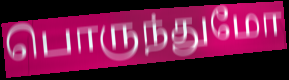
பொருந்துமோ